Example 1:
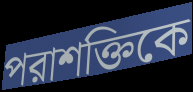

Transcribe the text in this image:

পরাশক্তিকে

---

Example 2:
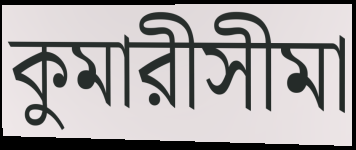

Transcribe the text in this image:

কুমারীসীমা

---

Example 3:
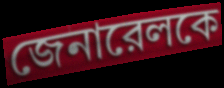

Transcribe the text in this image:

জেনারেলকে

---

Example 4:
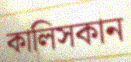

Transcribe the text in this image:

কালিসকান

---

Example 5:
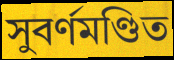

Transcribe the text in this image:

সুবর্ণমণ্ডিত